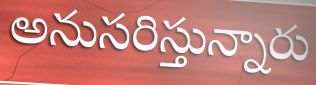
అనుసరిస్తున్నారు